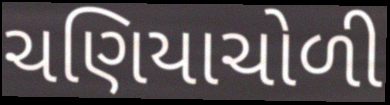
ચણિયાચોળી